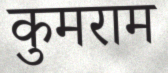
कुमराम